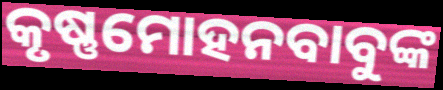
କୃଷ୍ଣମୋହନବାବୁଙ୍କ